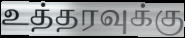
உத்தரவுக்கு